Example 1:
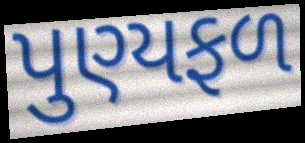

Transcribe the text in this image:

પુણ્યફળ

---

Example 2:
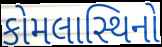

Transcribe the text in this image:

કોમલાસ્થિનો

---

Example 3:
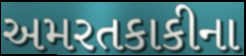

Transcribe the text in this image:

અમરતકાકીના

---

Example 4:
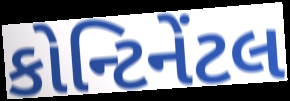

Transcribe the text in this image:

કોન્ટિનેંટલ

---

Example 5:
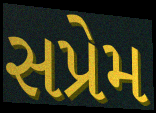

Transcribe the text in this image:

સપ્રેમ